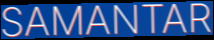
SAMANTAR